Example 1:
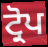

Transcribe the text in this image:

ਟ੍ਰੋਪ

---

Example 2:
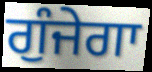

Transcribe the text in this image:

ਗੁੰਜੇਗਾ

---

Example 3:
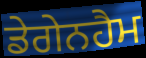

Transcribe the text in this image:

ਡੇਗੇਨਹੈਮ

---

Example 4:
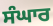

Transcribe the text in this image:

ਸੰਘਾਰ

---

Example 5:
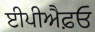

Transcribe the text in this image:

ਈਪੀਐਫ਼ਓ